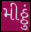
મીઠ્ઠું